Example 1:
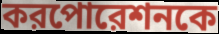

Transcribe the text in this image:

করপোরেশনকে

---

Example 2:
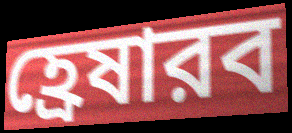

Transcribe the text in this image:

হ্রেষারব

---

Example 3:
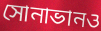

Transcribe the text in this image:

সোনাভানও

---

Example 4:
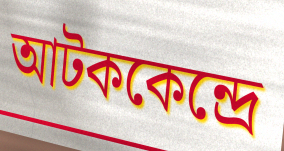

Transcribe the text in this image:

আটককেন্দ্রে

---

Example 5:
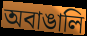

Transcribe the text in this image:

অবাঙালি